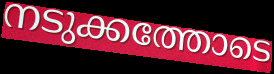
നടുക്കത്തോടെ